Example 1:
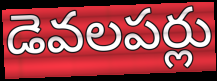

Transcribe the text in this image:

డెవలపర్లు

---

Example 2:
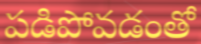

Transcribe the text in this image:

పడిపోవడంతో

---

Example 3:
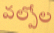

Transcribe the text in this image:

వల్పోల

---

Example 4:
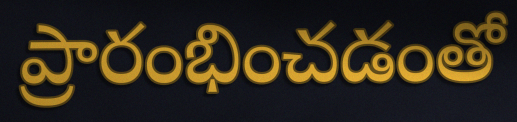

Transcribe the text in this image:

ప్రారంభించడంతో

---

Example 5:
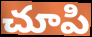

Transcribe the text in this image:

చూపి